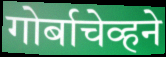
गोर्बाचेव्हने